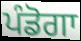
ਪੰਡੋਗਾ